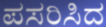
ಪಸರಿಸಿದ